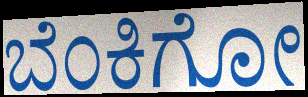
ಬೆಂಕಿಗೋ